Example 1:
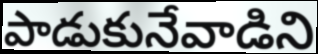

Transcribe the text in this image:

పాడుకునేవాడిని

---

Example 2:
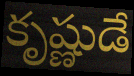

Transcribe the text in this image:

కృష్ణుడే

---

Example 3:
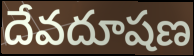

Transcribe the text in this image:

దేవదూషణ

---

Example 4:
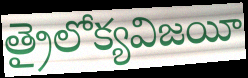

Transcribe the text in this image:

త్రైలోక్యవిజయీ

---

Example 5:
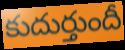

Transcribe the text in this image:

కుదుర్తుందీ